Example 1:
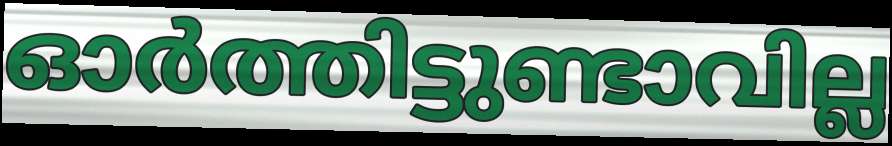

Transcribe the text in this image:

ഓർത്തിട്ടുണ്ടാവില്ല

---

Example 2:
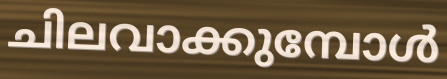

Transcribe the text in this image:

ചിലവാക്കുമ്പോൾ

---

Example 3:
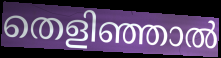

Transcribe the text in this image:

തെളിഞ്ഞാൽ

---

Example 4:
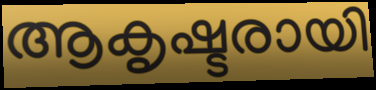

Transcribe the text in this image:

ആകൃഷ്ടരായി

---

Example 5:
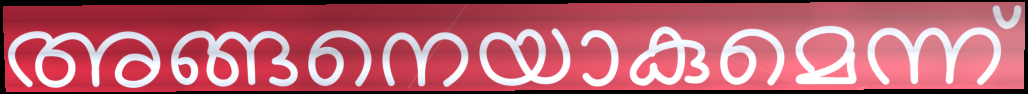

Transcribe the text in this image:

അങ്ങനെയാകുമെന്ന്